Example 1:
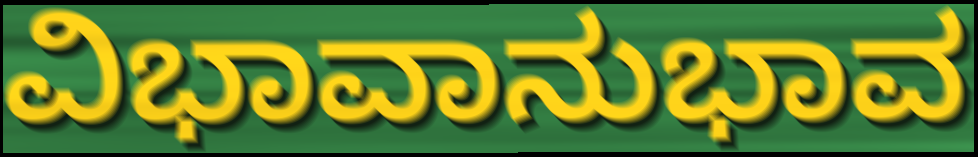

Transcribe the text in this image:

ವಿಭಾವಾನುಭಾವ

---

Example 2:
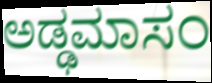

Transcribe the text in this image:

ಅಡ್ಢಮಾಸಂ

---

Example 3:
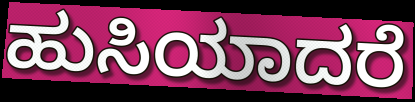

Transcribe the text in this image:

ಹುಸಿಯಾದರೆ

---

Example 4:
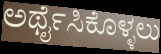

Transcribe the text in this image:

ಅರ್ಥೈಸಿಕೊಳ್ಳಲು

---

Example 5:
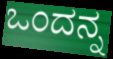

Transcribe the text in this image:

ಒಂದನ್ನ